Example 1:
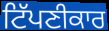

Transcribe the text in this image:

ਟਿੱਪਣੀਕਾਰ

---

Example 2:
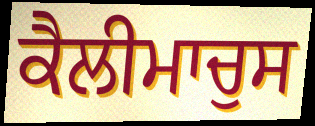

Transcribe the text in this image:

ਕੈਲੀਮਾਚੁਸ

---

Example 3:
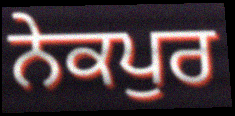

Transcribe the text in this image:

ਨੇਕਪੁਰ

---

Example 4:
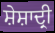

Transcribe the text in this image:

ਸ਼ੇਸ਼ਾਦ੍ਰੀ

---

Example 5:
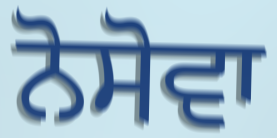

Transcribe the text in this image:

ਨੋਸੋਵਾ